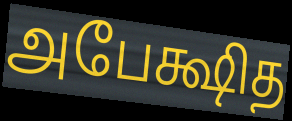
அபேக்ஷித